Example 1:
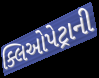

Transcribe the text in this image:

ક્લિઓપેટ્રાની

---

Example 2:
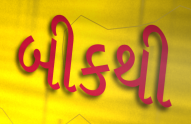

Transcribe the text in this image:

બીકથી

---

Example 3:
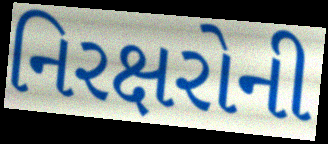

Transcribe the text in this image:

નિરક્ષરોની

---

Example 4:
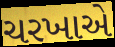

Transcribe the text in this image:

ચરખાએ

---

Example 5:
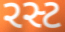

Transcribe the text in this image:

રસ્ટ